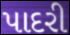
પાદરી